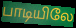
பாடியிலே